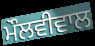
ਮੌਲਵੀਵਾਲ